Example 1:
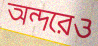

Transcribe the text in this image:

অন্দরেও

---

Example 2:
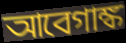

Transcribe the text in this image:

আবেগাঙ্ক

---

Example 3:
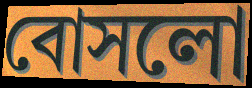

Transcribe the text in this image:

বোসলো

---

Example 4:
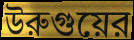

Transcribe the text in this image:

উরুগুয়ের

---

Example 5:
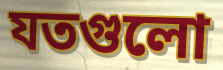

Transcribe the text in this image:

যতগুলো